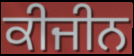
ਕੀਜੀਨ